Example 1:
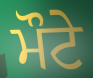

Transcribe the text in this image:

ਮੌਟੇ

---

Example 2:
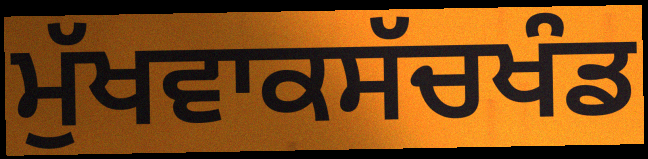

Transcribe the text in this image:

ਮੁੱਖਵਾਕਸੱਚਖੰਡ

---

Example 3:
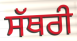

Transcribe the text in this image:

ਸੱਥਰੀ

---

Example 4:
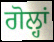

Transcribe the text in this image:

ਗੋਲ੍ਹਾਂ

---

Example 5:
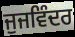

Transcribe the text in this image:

ਜੁਜਵਿੰਦਰ